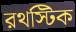
রথস্টিক